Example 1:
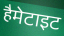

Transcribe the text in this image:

हैमेटाइट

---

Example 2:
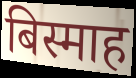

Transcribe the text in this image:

बिस्माह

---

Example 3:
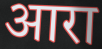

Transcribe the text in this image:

आरा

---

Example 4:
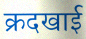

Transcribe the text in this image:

क्रदखाई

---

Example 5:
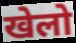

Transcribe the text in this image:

खेलो